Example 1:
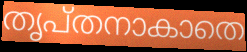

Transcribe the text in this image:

തൃപ്തനാകാതെ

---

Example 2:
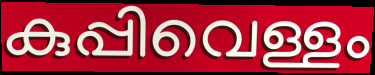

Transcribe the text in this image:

കുപ്പിവെള്ളം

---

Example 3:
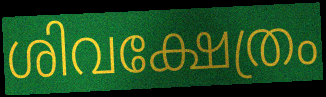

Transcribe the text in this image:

ശിവക്ഷേത്രം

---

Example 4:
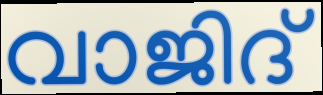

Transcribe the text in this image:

വാജിദ്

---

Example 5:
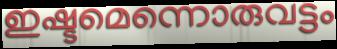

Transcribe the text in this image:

ഇഷ്ടമെന്നൊരുവട്ടം